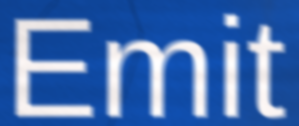
Emit